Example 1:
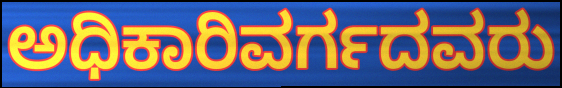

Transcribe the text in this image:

ಅಧಿಕಾರಿವರ್ಗದವರು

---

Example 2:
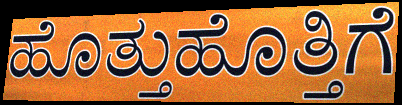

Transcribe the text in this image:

ಹೊತ್ತುಹೊತ್ತಿಗೆ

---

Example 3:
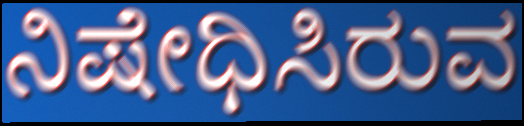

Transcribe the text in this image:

ನಿಷೇಧಿಸಿರುವ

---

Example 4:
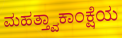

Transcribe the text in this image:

ಮಹತ್ತ್ವಾಕಾಂಕ್ಷೆಯ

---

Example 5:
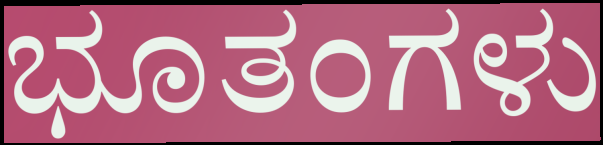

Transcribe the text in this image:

ಭೂತಂಗಳು